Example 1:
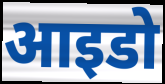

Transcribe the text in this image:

आइडो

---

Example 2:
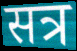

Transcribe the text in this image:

सत्र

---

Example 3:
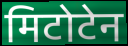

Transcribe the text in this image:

मिटोटेन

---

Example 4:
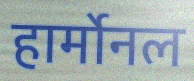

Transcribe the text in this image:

हार्मोनल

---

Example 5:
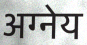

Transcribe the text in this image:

अग्नेय